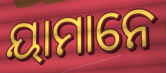
ୟାମାନେ